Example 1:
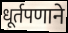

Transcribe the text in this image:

धूर्तपणाने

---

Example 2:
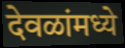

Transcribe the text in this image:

देवळांमध्ये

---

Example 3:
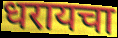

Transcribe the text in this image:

धरायचा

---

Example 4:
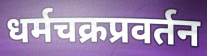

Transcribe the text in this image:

धर्मचक्रप्रवर्तन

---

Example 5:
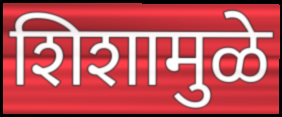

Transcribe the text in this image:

शिशामुळे